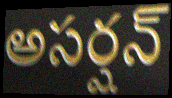
అసర్షన్